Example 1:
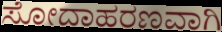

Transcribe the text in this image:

ಸೋದಾಹರಣವಾಗಿ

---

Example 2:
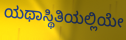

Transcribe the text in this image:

ಯಥಾಸ್ಥಿತಿಯಲ್ಲಿಯೇ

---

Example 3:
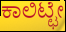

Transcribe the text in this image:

ಕಾಲಿಟ್ಟೇ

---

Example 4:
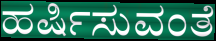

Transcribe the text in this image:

ಹರ್ಷಿಸುವಂತೆ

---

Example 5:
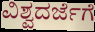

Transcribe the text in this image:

ವಿಶ್ವದರ್ಜೆಗೆ